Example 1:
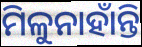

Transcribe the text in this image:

ମିଳୁନାହାଁନ୍ତି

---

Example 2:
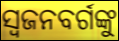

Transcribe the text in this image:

ସ୍ଵଜନବର୍ଗଙ୍କୁ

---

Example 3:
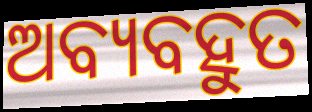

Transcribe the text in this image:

ଅବ୍ୟବହୁତ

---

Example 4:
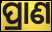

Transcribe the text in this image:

ପ୍ରାଣ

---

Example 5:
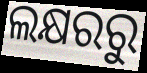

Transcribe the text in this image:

ଲକ୍ଷରରୁ